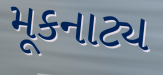
મૂકનાટ્ય